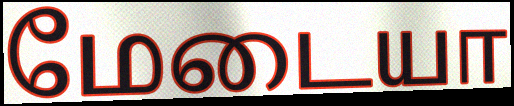
மேடையா